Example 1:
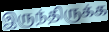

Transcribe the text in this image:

இருந்திருக்க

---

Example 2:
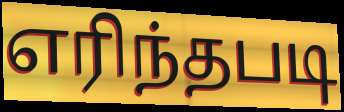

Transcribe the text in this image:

எரிந்தபடி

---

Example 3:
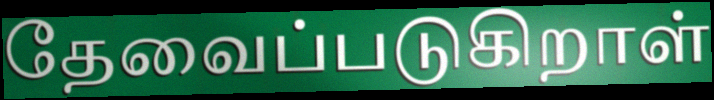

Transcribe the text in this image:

தேவைப்படுகிறாள்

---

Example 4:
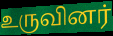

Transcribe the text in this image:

உருவினர்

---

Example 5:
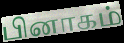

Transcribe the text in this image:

பினாகம்